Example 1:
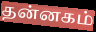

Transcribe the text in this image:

தன்னகம்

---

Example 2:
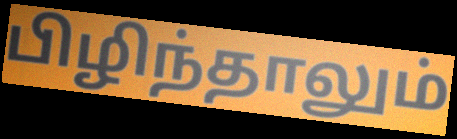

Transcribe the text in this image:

பிழிந்தாலும்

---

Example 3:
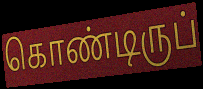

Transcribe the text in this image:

கொண்டிருப்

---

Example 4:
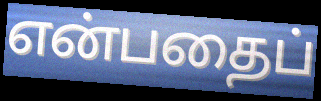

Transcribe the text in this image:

என்பதைப்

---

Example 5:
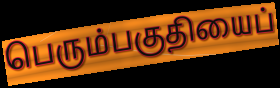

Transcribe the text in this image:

பெரும்பகுதியைப்